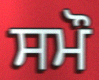
ਸਮੌ